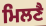
ਮਿਲਣੈ